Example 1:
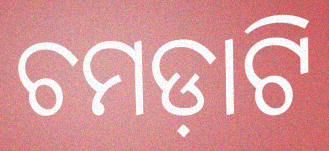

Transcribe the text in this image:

ଚମଡ଼ାଟି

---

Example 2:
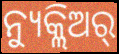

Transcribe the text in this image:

ନ୍ୟୁକ୍ଲିଅର୍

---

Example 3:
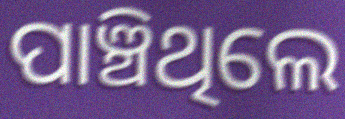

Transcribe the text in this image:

ପାଞ୍ଚିଥିଲେ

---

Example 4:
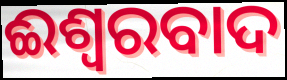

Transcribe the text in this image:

ଈଶ୍ବରବାଦ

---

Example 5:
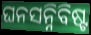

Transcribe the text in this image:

ଘନସନ୍ନିବିଷ୍ଟ